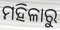
ମହିଳାରୁ